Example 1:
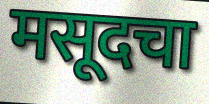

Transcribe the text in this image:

मसूदचा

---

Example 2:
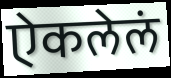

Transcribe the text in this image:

ऐकलेलं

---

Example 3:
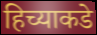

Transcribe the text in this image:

हिच्याकडे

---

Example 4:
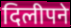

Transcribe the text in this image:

दिलीपने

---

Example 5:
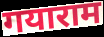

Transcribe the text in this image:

गयाराम